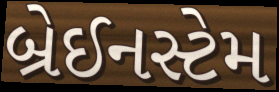
બ્રેઈનસ્ટેમ